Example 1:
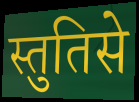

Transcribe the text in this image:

स्तुतिसे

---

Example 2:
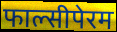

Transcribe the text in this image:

फाल्सीपेरम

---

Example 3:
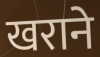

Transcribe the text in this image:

खराने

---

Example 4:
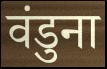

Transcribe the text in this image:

वंडुना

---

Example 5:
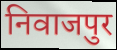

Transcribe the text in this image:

निवाजपुर